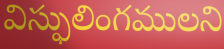
విస్ఫులింగములని